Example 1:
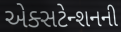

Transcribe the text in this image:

એક્સટેન્શનની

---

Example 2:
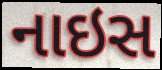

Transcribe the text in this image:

નાઇસ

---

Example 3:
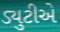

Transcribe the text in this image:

ડ્યુટીએ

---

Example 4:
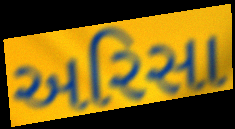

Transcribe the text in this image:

અરિસા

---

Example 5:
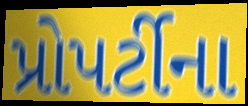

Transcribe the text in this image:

પ્રોપર્ટીના